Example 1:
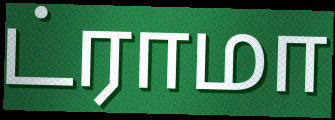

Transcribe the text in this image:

ட்ராமா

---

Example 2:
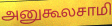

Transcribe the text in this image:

அனுகூலசாமி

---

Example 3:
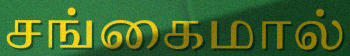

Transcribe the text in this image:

சங்கைமால்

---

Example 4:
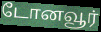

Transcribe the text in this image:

டோனவூர்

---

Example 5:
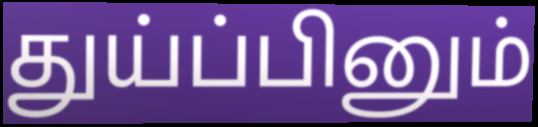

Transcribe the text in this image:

துய்ப்பினும்